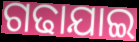
ଗଢାଯାଇ